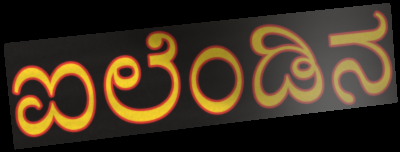
ಐಲೆಂಡಿನ